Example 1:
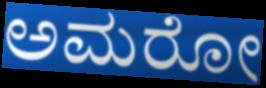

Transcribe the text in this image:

ಅಮರೋ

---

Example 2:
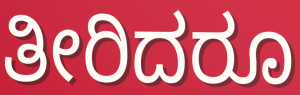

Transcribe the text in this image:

ತೀರಿದರೂ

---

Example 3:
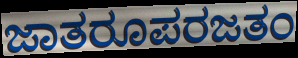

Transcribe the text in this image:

ಜಾತರೂಪರಜತಂ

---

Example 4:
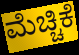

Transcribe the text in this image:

ಮೆಚ್ಚಿಕೆ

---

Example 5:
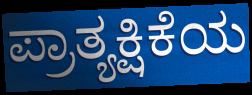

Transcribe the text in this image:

ಪ್ರಾತ್ಯಕ್ಷಿಕೆಯ